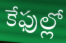
కేఫుల్లో